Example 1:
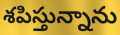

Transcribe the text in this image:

శపిస్తున్నాను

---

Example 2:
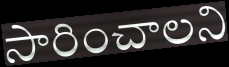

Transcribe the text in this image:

సారించాలని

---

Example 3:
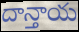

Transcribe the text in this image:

దాన్తాయ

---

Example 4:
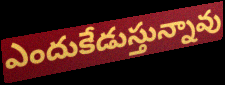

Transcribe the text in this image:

ఎందుకేడుస్తున్నావు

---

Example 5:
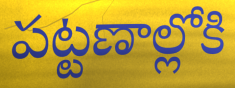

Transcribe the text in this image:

పట్టణాల్లోకి